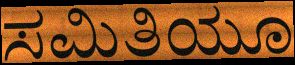
ಸಮಿತಿಯೂ